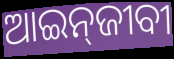
ଆଇନ୍‌ଜୀବୀ